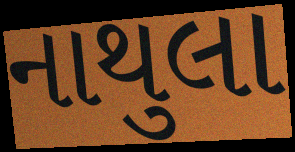
નાથુલા